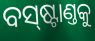
ବସ୍‌ଷ୍ଟାଣ୍ତକୁ